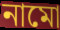
নামো